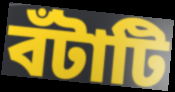
বঁটাটি